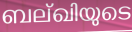
ബല്ഖിയുടെ